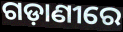
ଗଡ଼ାଣୀରେ